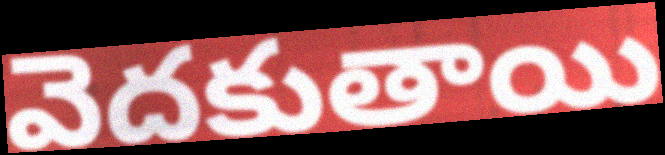
వెదకుతాయి